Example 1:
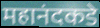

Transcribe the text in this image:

महानंदकडे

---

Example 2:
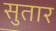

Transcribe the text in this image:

सुतार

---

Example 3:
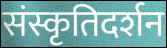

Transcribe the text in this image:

संस्कृतिदर्शन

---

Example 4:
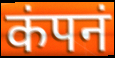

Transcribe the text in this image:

कंपनं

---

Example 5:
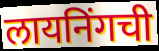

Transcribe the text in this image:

लायनिंगची